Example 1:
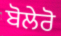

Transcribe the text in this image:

ਬੋਲੇਰੋ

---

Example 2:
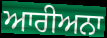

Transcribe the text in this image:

ਆਰੀਅਨਾ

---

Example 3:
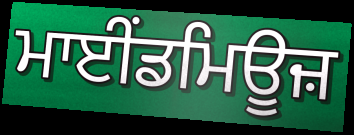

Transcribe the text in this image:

ਮਾਈਂਡਮਿਊਜ਼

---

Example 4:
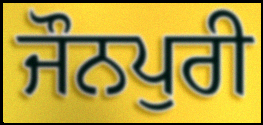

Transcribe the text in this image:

ਜੌਨਪੁਰੀ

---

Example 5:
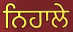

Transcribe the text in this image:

ਨਿਹਾਲੇ